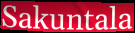
Sakuntala